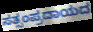
ಸತ್ಸಂಪ್ರದಾಯದ